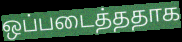
ஒப்படைத்ததாக